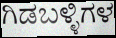
ಗಿಡಬಳ್ಳಿಗಳ